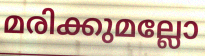
മരിക്കുമല്ലോ